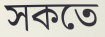
সকতে